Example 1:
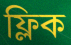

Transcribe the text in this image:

ফ্লিক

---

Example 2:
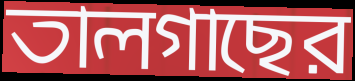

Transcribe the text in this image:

তালগাছের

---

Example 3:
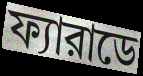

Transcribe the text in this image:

ফ্যারাডে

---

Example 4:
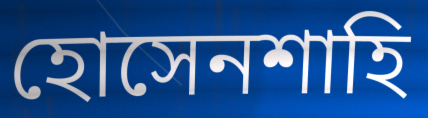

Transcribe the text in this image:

হোসেনশাহি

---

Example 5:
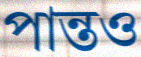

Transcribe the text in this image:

পান্তও